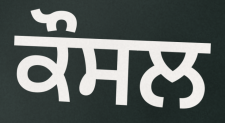
ਕੌਸਲ